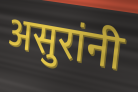
असुरांनी